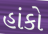
હાંકો